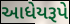
આધેયરૂપે